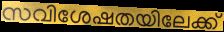
സവിശേഷതയിലേക്ക്